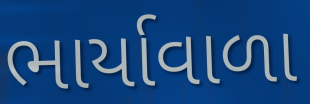
ભાર્યાવાળા